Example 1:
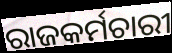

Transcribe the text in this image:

ରାଜକର୍ମଚାରୀ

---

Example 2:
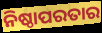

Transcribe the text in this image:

ନିଷ୍ଠାପରତାର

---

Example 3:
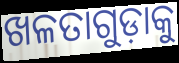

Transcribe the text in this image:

ଖଳତାଗୁଡ଼ାକୁ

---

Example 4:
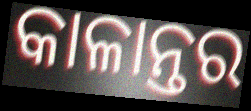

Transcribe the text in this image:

କାଳାନ୍ତର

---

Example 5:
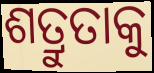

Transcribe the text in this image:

ଶତ୍ରୁତାକୁ